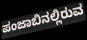
ಪಂಜಾಬಿನಲ್ಲಿರುವ